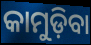
କାମୁଡ଼ିବା